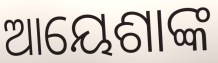
ଆୟେଶାଙ୍କ